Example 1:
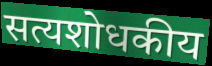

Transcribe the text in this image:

सत्यशोधकीय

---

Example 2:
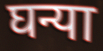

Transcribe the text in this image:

घन्या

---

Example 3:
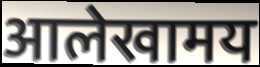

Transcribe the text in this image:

आलेखामय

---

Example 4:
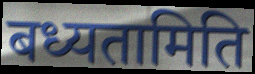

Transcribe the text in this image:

बध्यतामिति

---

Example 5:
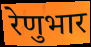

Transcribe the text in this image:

रेणुभार